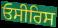
ਓਸੀਰਿਸ